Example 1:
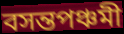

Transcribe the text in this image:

বসন্তপঞ্চমী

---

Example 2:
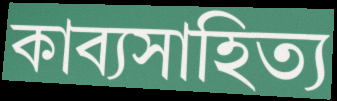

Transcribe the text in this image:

কাব্যসাহিত্য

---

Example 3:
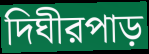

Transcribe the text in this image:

দিঘীরপাড়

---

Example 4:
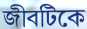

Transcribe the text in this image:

জীবটিকে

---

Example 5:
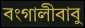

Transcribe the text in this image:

বংগালীবাবু